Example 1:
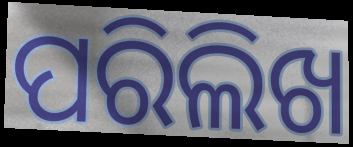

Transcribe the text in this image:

ପରିଲିଖ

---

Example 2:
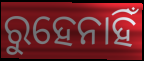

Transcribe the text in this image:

ରୁହେନାହିଁ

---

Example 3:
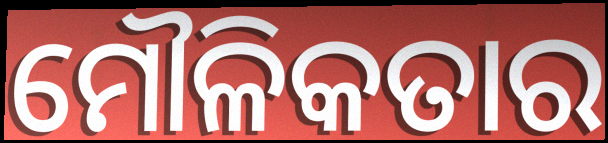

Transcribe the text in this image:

ମୌଳିକତାର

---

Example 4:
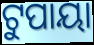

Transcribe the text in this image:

ଟୁପାୟା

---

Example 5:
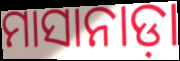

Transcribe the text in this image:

ମାସାନାଡ଼ା